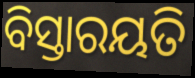
ବିସ୍ତାରୟତି